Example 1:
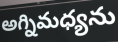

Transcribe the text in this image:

అగ్నిమధ్యను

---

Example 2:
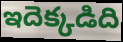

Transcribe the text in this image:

ఇదెక్కడిది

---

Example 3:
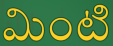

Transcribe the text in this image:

మింటి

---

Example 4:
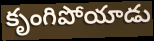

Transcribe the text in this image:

కృంగిపోయాడు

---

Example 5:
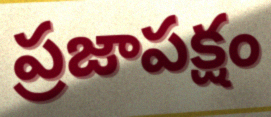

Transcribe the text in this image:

ప్రజాపక్షం